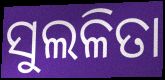
ସୁଲଳିତା